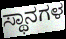
ಸ್ಥಾನಗಳ